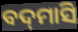
ବଦ୍‌ମାସି